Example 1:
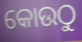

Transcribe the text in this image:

କୋଉଠୁ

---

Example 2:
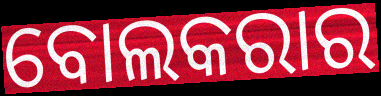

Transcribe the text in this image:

ବୋଲକରାର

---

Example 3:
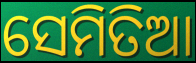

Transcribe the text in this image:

ସେମିତିଆ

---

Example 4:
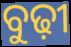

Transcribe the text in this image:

ବୁଢ଼ୀ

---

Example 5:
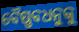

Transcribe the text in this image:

ବୈଷ୍ଣବଧନୁକୁ